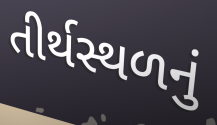
તીર્થસ્થળનું